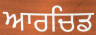
ਆਰਚਿਡ